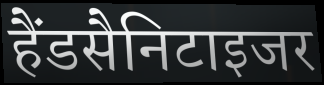
हैंडसैनिटाइजर